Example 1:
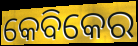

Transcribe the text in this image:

କେବିକେର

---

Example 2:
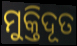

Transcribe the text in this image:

ମୁକ୍ତିଦୂତ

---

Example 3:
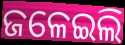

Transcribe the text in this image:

ଜଳେଇଲି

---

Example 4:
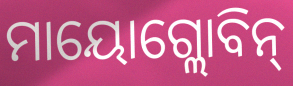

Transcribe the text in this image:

ମାୟୋଗ୍ଲୋବିନ୍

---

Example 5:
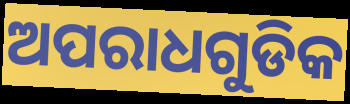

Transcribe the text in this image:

ଅପରାଧଗୁଡିକ